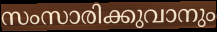
സംസാരിക്കുവാനും